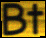
Bt